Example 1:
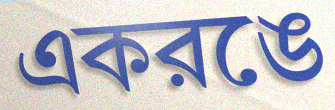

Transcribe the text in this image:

একরঙে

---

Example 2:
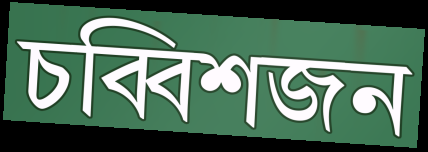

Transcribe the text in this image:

চব্বিশজন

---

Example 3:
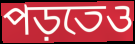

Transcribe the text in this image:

পড়তেও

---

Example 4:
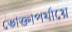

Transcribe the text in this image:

ভোক্তাপর্যায়ে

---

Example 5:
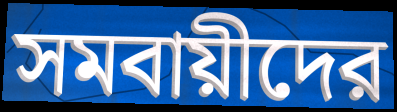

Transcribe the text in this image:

সমবায়ীদের